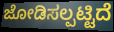
ಜೋಡಿಸಲ್ಪಟ್ಟಿದೆ